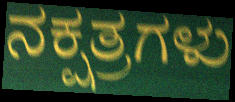
ನಕ್ಷತ್ರಗಳು